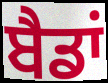
ਬੈਡਾਂ